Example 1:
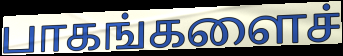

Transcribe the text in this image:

பாகங்களைச்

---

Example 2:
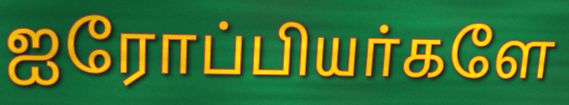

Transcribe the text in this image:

ஐரோப்பியர்களே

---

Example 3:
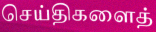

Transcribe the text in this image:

செய்திகளைத்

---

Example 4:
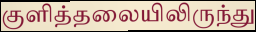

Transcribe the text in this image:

குளித்தலையிலிருந்து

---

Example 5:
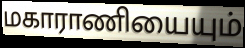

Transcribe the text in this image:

மகாராணியையும்